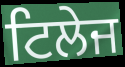
ਟਿਲੇਜ